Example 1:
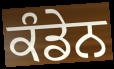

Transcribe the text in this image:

ਕੰਡੇਨ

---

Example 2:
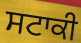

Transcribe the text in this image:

ਸਟਾਕੀ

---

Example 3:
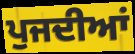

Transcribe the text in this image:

ਪੁਜਦੀਆਂ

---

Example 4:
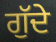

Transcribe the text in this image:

ਗੁੱਦੇ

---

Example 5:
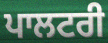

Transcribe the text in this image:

ਪਾਲਟਰੀ